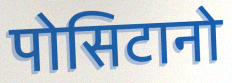
पोसिटानो